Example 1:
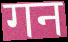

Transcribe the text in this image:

गन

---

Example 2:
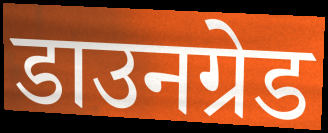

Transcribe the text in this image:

डाउनग्रेड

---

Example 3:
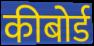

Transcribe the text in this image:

कीबोर्ड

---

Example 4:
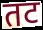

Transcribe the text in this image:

तट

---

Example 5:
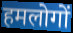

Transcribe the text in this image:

हमलोगों